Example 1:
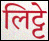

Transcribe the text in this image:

लिट्टे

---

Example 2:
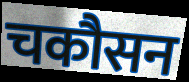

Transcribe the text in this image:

चकौसन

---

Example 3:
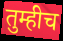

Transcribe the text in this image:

तुम्हीच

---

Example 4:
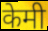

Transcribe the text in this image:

केमी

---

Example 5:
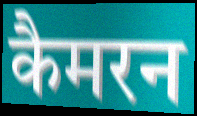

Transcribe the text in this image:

कैमरन